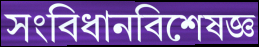
সংবিধানবিশেষজ্ঞ